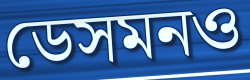
ডেসমনও